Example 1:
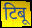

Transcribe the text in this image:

टिबू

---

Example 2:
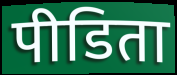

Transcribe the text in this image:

पीडिता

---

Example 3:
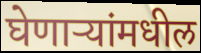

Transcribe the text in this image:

घेणाऱ्यांमधील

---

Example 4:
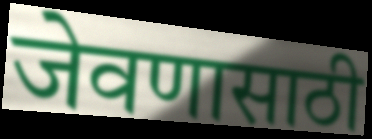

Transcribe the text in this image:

जेवणासाठी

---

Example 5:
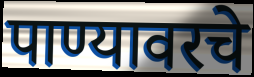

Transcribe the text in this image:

पाण्यावरचे